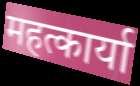
महत्कार्या